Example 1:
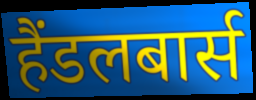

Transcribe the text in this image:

हैंडलबार्स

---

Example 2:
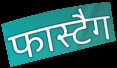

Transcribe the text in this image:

फास्टैग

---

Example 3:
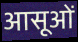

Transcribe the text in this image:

आसूओं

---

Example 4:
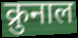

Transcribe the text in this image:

क्रुनाल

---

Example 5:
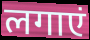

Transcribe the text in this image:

लगाएं